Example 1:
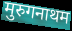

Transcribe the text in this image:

मुरुगनाथम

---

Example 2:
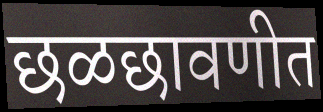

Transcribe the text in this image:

छळछावणीत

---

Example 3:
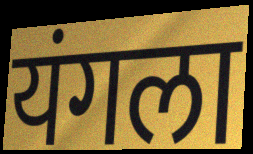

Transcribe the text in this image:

यंगला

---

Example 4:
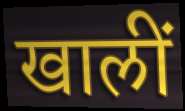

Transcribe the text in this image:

खालीं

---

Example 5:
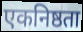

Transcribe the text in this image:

एकनिष्ठता